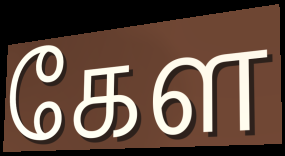
கேள